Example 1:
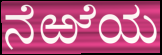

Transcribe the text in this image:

ನೆಱೆಯ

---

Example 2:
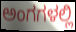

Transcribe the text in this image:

ಅಂಗಗಳಲ್ಲಿ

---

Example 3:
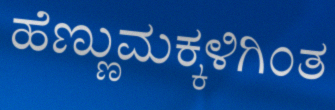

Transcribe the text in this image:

ಹೆಣ್ಣುಮಕ್ಕಳಿಗಿಂತ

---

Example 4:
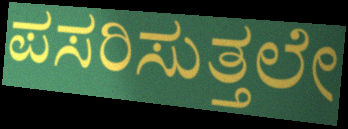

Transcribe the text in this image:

ಪಸರಿಸುತ್ತಲೇ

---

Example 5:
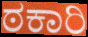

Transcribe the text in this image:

ಠಕಾರಿ